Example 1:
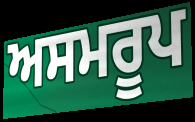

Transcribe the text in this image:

ਅਸਮਰੂਪ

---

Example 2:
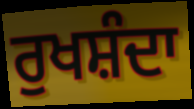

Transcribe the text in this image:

ਰੁਖਸ਼ੰਦਾ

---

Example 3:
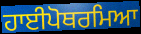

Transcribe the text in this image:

ਹਾਈਪੋਥਰਮਿਆ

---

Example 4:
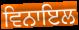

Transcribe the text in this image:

ਵਿਨਾਇਲ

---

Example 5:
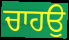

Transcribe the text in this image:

ਚਾਹਉ